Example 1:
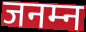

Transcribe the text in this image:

जनम्न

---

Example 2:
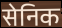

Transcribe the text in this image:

सेनिक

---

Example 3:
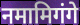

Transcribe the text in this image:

नमामिगंगे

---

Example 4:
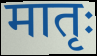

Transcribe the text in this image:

मातृः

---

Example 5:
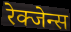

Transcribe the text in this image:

रेक्जेन्स